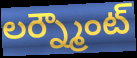
లర్న్మౌంట్